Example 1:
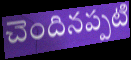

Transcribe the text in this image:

చెందినప్పటి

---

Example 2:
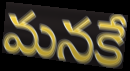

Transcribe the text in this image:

మనకే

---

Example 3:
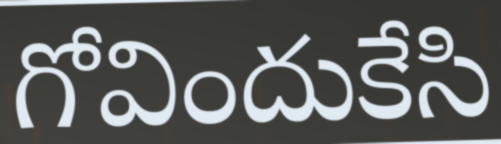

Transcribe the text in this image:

గోవిందుకేసి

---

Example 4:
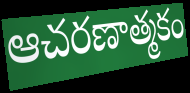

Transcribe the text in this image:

ఆచరణాత్మకం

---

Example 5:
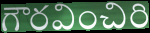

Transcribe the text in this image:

గౌరవించిరి